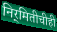
निर्मितीचीही